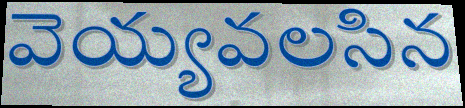
వెయ్యవలసిన